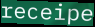
receipe